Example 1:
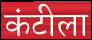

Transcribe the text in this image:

कंटीला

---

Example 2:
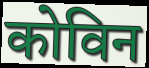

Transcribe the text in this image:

कोविन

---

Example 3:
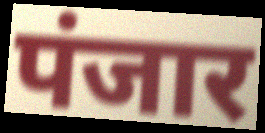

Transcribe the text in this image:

पंजार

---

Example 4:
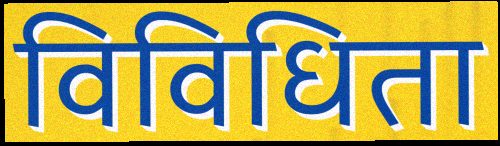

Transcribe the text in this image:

विविधिता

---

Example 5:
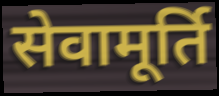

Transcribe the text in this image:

सेवामूर्ति